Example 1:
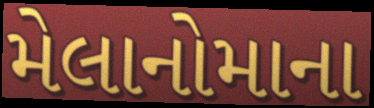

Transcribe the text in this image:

મેલાનોમાના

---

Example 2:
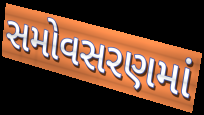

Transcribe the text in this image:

સમોવસરણમાં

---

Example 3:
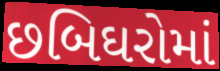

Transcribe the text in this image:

છબિઘરોમાં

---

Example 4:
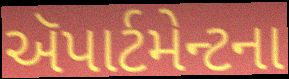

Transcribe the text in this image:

ઍપાર્ટમેન્ટના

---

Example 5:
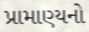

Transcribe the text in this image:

પ્રામાણ્યનો